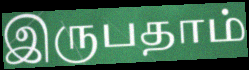
இருபதாம்